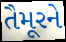
તૈમૂરને